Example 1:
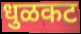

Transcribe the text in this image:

धुळकट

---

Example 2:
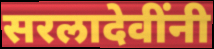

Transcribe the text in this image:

सरलादेवींनी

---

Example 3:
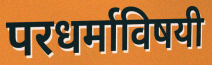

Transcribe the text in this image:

परधर्माविषयी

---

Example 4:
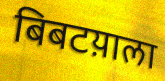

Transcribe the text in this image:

बिबटय़ाला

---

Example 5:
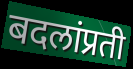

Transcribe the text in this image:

बदलांप्रती